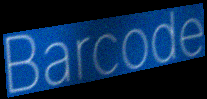
Barcode